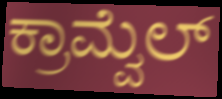
ಕ್ರಾಮ್ವೆಲ್